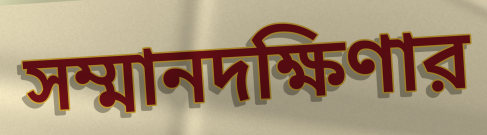
সম্মানদক্ষিণার